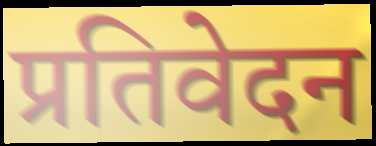
प्रतिवेदन